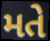
મતે